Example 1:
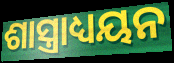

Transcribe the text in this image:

ଶାସ୍ତ୍ରାଧ୍ୟୟନ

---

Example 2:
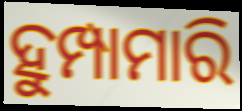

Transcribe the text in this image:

ହୁମ୍ପାମାରି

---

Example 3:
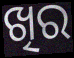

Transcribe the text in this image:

ଖିର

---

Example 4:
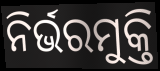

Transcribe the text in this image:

ନିର୍ଭରମୁକ୍ତି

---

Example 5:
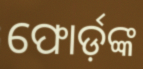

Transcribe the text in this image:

ଫୋର୍ଡ଼ଙ୍କ